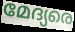
മേദ്യരെ